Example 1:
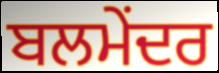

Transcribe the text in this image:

ਬਲਮੇਂਦਰ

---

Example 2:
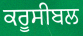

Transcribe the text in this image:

ਕਰੂਸੀਬਲ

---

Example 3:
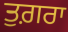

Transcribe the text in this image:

ਤੁਗ਼ਰਾ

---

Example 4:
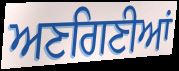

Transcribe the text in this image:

ਅਣਗਿਣੀਆਂ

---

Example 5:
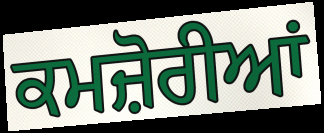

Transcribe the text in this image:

ਕਮਜ਼ੋਰੀਆਂ